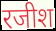
रजीश